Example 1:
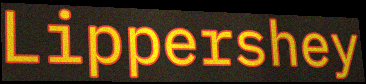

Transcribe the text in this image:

Lippershey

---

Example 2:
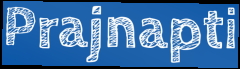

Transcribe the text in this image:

Prajnapti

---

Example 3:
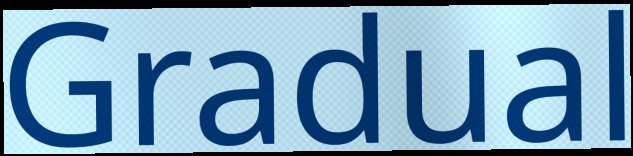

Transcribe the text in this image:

Gradual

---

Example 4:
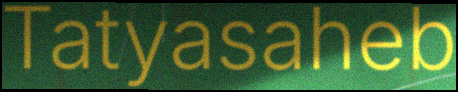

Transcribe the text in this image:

Tatyasaheb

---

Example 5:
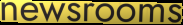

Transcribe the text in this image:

newsrooms